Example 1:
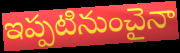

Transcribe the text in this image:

ఇప్పటినుంచైనా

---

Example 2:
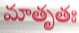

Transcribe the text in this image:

మాతృతః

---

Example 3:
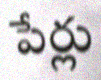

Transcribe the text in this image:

పేర్లు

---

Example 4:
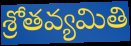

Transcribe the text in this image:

శ్రోతవ్యమితి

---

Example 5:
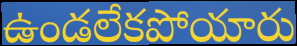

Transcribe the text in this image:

ఉండలేకపోయారు